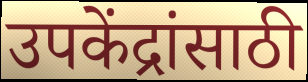
उपकेंद्रांसाठी